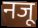
नजू